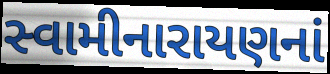
સ્વામીનારાયણનાં